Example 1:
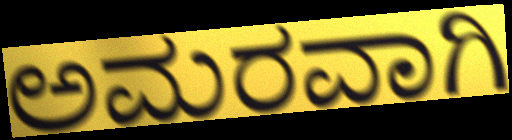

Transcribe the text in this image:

ಅಮರವಾಗಿ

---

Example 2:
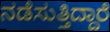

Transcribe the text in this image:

ನಡೆಸುತ್ತಿದ್ದಾರೆ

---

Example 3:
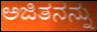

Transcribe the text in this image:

ಅಜಿತನನ್ನು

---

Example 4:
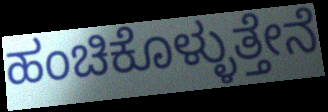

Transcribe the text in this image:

ಹಂಚಿಕೊಳ್ಳುತ್ತೇನೆ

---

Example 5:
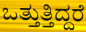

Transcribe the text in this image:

ಒತ್ತುತ್ತಿದ್ದರೆ